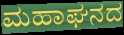
ಮಹಾಘನದ